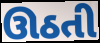
ઊઠતી